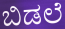
ಬಿಡಲೆ